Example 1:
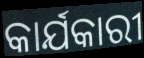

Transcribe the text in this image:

କାର୍ଯକାରୀ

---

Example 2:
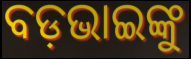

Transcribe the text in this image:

ବଡ଼ଭାଇଙ୍କୁ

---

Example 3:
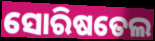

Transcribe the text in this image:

ସୋରିଷତେଲ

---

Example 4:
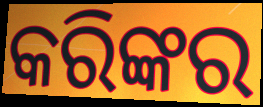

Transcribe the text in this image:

କରିଙ୍କର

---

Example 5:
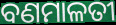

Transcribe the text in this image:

ବଣମାଳତୀ